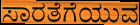
ಸಾರತೆಗೆಯುವ